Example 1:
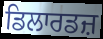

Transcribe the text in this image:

ਡਿਲਾਰਡਜ਼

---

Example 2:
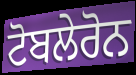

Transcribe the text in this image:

ਟੋਬਲੇਰੋਨ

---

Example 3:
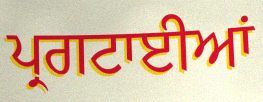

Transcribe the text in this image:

ਪ੍ਰਗਟਾਈਆਂ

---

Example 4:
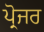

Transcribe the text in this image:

ਪ੍ਰੋਜਰ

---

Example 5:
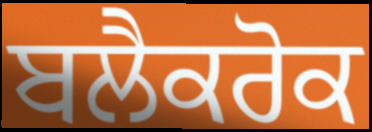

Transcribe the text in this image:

ਬਲੈਕਰੋਕ